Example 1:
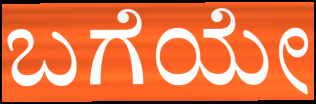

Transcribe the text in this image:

ಬಗೆಯೇ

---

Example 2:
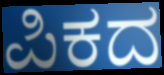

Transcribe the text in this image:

ಪಿಕದ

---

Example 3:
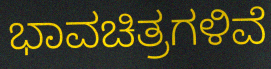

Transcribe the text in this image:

ಭಾವಚಿತ್ರಗಳಿವೆ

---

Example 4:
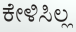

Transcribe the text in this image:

ಕೇಳಿಸಿಲ್ಲ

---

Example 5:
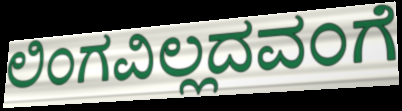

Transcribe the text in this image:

ಲಿಂಗವಿಲ್ಲದವಂಗೆ